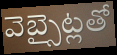
వెబ్సైట్లతో